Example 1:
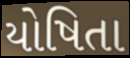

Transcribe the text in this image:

યોષિતા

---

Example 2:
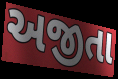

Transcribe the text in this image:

અજીતા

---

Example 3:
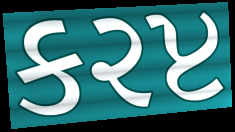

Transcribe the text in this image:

કરપ્ટ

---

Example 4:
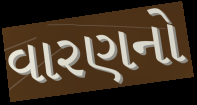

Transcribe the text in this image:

વારણનો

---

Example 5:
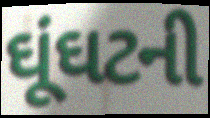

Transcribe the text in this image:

ઘૂંઘટની